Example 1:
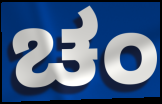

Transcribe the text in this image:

ಚಂ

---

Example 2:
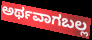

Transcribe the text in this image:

ಅರ್ಥವಾಗಬಲ್ಲ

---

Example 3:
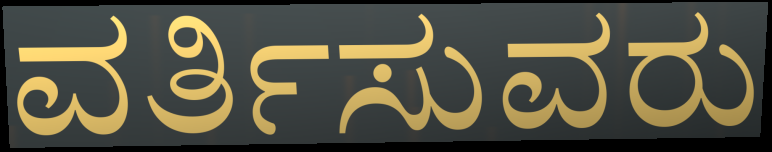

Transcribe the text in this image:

ವರ್ತಿಸುವರು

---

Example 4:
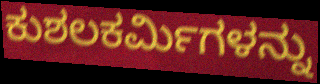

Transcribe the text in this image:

ಕುಶಲಕರ್ಮಿಗಳನ್ನು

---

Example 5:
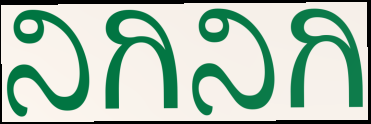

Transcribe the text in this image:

ನಿಗಿನಿಗಿ